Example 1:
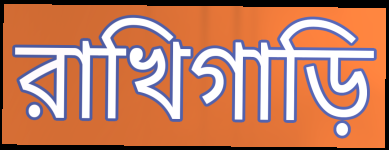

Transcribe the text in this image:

রাখিগাড়ি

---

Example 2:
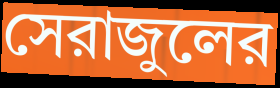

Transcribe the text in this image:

সেরাজুলের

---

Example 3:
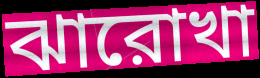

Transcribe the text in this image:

ঝারোখা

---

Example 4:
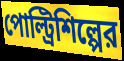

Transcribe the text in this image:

পোল্ট্রিশিল্পের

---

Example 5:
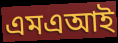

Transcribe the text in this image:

এমএআই